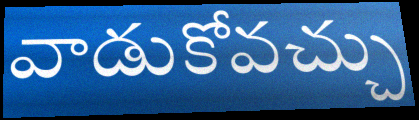
వాడుకోవచ్చు